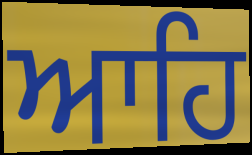
ਆਹਿ